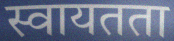
स्वायतता